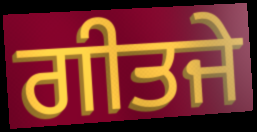
ਗੀਤਜੇ